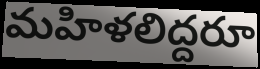
మహిళలిద్దరూ